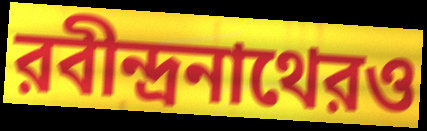
রবীন্দ্রনাথেরও